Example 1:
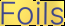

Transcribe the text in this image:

Foils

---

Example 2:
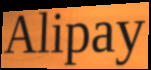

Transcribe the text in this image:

Alipay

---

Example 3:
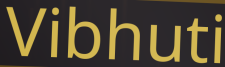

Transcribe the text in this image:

Vibhuti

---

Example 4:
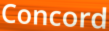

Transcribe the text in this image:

Concord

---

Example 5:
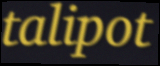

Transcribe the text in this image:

talipot